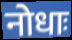
नोधाः